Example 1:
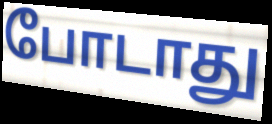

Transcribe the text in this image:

போடாது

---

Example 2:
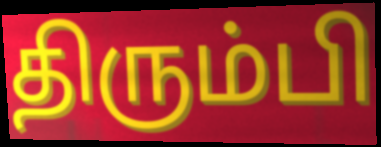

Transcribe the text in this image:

திரும்பி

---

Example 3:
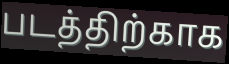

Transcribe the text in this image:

படத்திற்காக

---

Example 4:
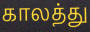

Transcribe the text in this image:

காலத்து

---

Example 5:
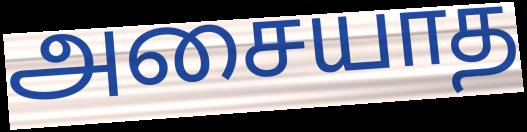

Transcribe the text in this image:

அசையாத